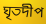
ঘৃতদীপ